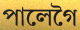
পালেগৈ